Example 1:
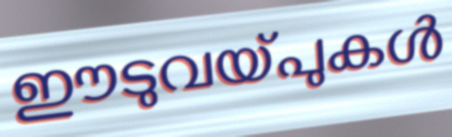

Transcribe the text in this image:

ഈടുവയ്പുകൾ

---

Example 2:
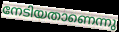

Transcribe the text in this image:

നേടിയതാണെന്നു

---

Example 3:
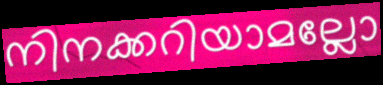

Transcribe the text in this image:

നിനക്കറിയാമല്ലോ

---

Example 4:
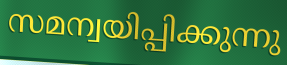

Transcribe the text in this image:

സമന്വയിപ്പിക്കുന്നു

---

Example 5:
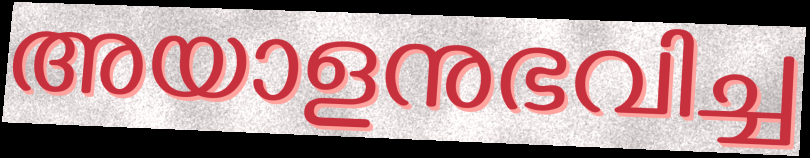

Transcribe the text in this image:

അയാളനുഭവിച്ച